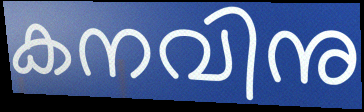
കനവിനു